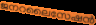
ജനറലൈസേഷൻ